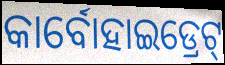
କାର୍ବୋହାଇଡ୍ରେଟ୍